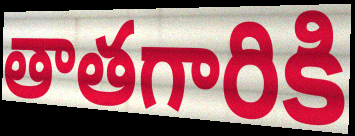
తాతగారికి